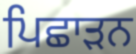
ਪਿਛਾੜਨ